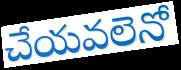
చేయవలెనో